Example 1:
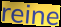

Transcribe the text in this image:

reine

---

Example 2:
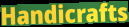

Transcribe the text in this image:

Handicrafts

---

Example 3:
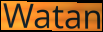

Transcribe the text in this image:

Watan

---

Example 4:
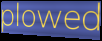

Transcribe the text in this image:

plowed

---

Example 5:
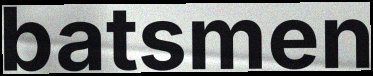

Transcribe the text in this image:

batsmen